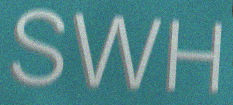
SWH